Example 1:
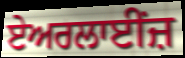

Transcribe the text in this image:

ਏਅਰਲਾਈਂਜ਼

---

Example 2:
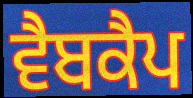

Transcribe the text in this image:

ਵੈਬਕੈਪ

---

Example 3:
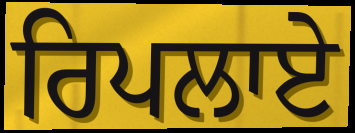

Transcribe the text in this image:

ਰਿਪਲਾਏ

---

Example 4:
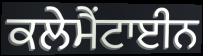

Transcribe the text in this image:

ਕਲੇਮੈਂਟਾਈਨ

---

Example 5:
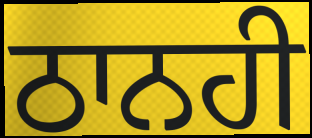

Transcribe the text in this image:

ਠਾਨਹੀ